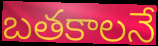
బతకాలనే